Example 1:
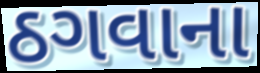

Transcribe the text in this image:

ઠગવાના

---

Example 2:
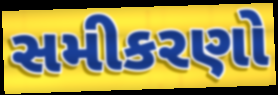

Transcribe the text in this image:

સમીકરણો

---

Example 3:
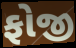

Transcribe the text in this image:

ફોજી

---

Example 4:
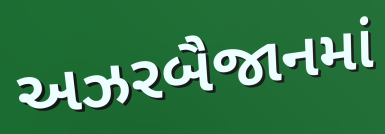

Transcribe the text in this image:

અઝરબૈજાનમાં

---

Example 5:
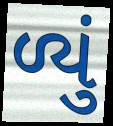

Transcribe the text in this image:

ળ્યું